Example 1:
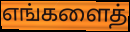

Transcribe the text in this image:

எங்களைத்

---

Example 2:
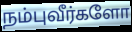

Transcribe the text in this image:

நம்புவீர்களோ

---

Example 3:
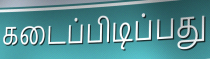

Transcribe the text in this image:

கடைப்பிடிப்பது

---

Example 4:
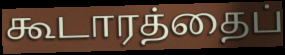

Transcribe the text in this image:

கூடாரத்தைப்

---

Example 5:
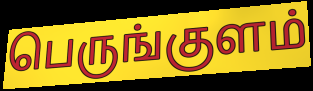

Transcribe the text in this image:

பெருங்குளம்